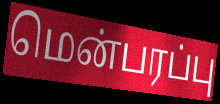
மென்பரப்பு